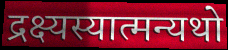
द्रक्ष्यस्यात्मन्यथो